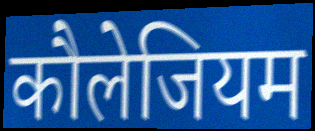
कौलेजियम